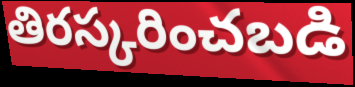
తిరస్కరించబడి